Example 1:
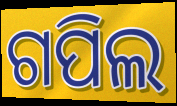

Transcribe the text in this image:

ଗପିଲ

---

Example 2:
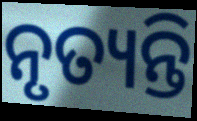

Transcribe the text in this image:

ନୃତ୍ୟନ୍ତି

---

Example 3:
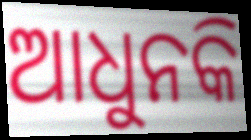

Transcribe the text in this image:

ଆଧୁନକି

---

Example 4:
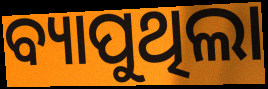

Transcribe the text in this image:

ବ୍ୟାପୁଥିଲା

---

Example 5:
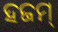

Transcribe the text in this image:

ହଜମ୍